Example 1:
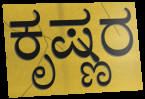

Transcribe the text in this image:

ಕೃಷ್ಣರ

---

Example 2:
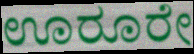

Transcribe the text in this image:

ಊರೂರೇ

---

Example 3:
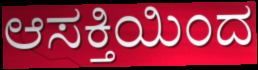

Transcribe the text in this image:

ಆಸಕ್ತಿಯಿಂದ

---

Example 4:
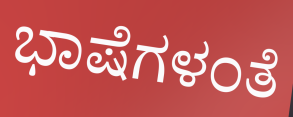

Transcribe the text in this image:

ಭಾಷೆಗಳಂತೆ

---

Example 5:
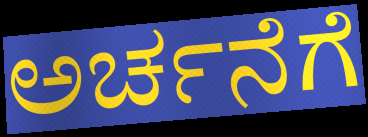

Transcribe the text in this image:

ಅರ್ಚನೆಗೆ